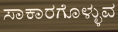
ಸಾಕಾರಗೊಳ್ಳುವ